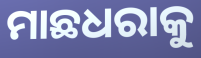
ମାଛଧରାକୁ